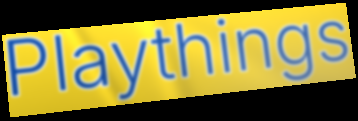
Playthings